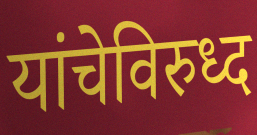
यांचेविरुध्द